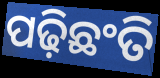
ପଢ଼ିଛଂତି